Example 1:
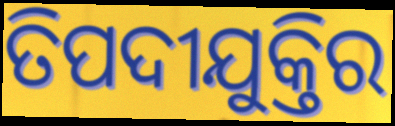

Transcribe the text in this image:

ତିପଦୀଯୁକ୍ତିର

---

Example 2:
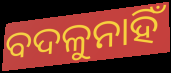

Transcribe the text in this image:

ବଦଳୁନାହିଁ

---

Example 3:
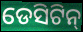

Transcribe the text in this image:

ଡେସିଟିନ୍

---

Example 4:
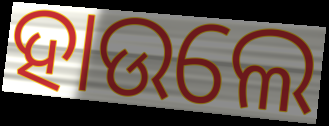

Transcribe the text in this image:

ହାଉଲେ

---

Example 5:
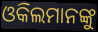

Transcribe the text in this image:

ଓକିଲମାନଙ୍କୁ